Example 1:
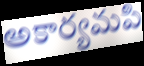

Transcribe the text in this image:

అకార్యమపి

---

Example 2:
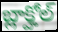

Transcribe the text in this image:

బ్లాక్హోల్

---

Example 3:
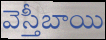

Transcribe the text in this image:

వెస్తీబాయి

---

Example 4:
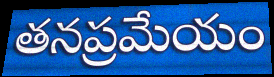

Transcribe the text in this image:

తనప్రమేయం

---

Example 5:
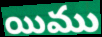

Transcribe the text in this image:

యిము